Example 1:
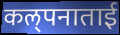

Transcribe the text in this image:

कल्पनाताई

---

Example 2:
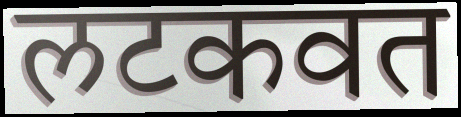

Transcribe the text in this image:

लटकवत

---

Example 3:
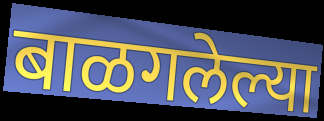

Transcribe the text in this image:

बाळगलेल्या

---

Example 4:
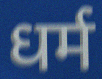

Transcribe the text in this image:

धर्म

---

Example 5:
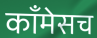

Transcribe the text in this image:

कॉंमेसच